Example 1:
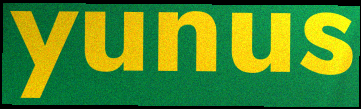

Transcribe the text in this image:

yunus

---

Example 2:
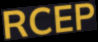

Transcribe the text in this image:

RCEP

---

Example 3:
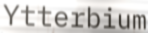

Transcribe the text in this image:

Ytterbium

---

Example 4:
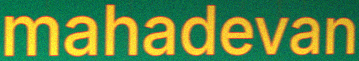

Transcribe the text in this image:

mahadevan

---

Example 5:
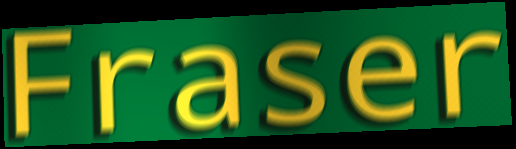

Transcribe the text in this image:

Fraser